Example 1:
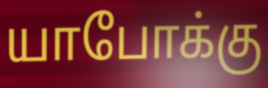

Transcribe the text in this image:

யாபோக்கு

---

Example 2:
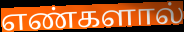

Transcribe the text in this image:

எண்களால்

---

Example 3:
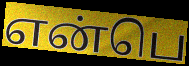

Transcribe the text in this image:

என்பெ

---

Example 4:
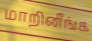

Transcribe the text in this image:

மாறினீங்க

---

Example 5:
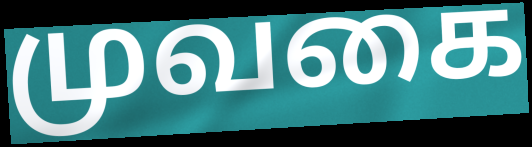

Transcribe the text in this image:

முவகை